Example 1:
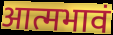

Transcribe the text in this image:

आत्मभावं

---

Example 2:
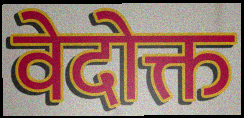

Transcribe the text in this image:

वेदोक्त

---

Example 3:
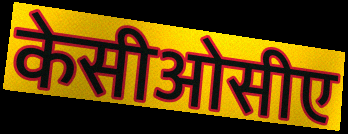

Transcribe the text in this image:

केसीओसीए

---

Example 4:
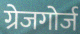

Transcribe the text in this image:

ग्रेजगोर्ज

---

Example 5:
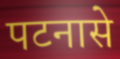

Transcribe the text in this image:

पटनासे